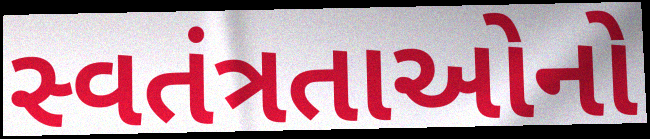
સ્વતંત્રતાઓનો